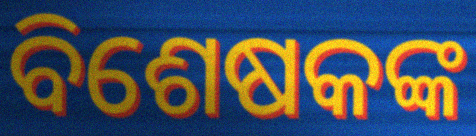
ବିଶେଷକଙ୍କ